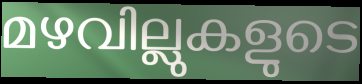
മഴവില്ലുകളുടെ